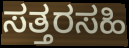
ಸತ್ತರಸಹಿ